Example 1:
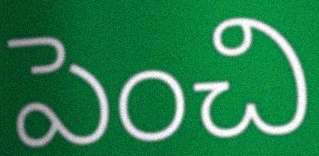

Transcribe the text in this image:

పెంచి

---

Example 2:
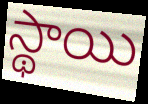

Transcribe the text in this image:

స్థాయి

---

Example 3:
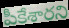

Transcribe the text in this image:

పీకేశారని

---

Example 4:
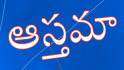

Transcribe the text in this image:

ఆస్తమా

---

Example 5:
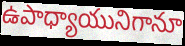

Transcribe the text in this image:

ఉపాధ్యాయునిగానూ